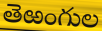
తెఱంగుల